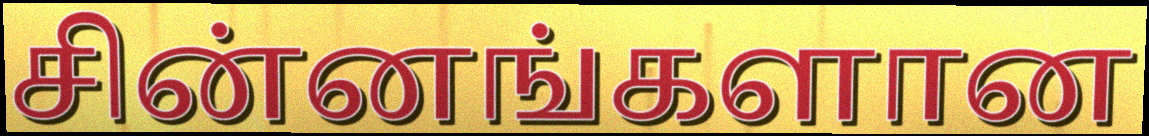
சின்னங்களான